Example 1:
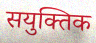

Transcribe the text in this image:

सयुक्तिक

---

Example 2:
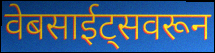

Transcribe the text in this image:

वेबसाईट्सवरून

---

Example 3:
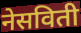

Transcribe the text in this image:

नेसविती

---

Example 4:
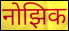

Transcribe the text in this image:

नोझिक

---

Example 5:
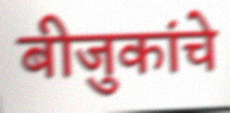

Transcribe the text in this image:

बीजुकांचे